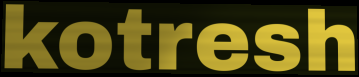
kotresh